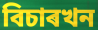
বিচাৰখন